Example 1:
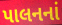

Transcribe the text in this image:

પાલનનાં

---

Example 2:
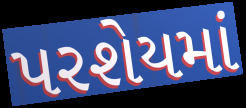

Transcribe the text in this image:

પરશેયમાં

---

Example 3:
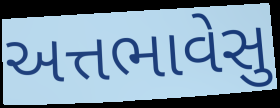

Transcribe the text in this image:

અત્તભાવેસુ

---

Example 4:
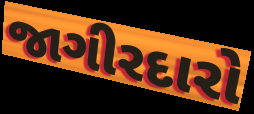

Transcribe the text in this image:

જાગીરદારો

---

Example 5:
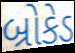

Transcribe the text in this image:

બ્રોકેડ